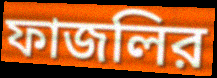
ফাজলির